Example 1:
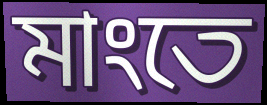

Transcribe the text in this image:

মাংতে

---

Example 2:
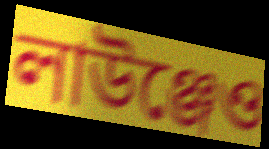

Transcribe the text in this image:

লাউঞ্জেও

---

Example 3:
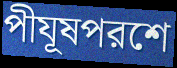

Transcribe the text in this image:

পীযূষপরশে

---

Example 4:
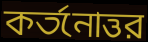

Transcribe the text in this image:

কর্তনোত্তর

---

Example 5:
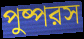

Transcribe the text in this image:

পুষ্পরস